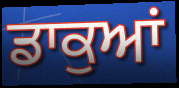
ਡਾਕੁਆਂ